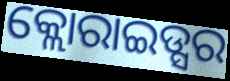
କ୍ଲୋରାଇଡ୍ସର